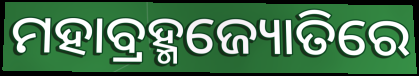
ମହାବ୍ରହ୍ମଜ୍ୟୋତିରେ